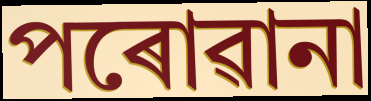
পৰোৱানা